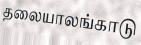
தலையாலங்காடு